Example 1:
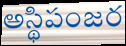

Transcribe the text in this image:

అస్థిపంజర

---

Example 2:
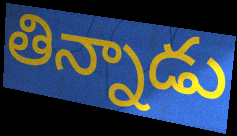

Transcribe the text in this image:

తిన్నాడు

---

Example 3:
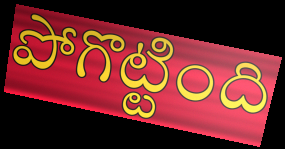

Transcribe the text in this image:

పోగొట్టింది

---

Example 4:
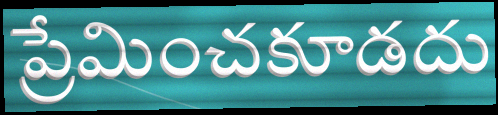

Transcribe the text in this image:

ప్రేమించకూడదు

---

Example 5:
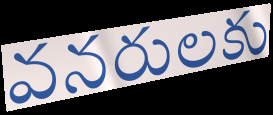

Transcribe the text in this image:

వనరులకు